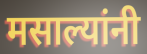
मसाल्यांनी